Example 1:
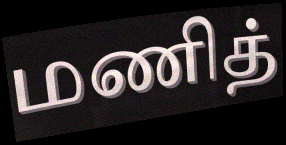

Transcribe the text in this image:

மணித்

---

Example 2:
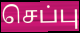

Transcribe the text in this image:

செப்பு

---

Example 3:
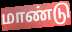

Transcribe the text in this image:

மாண்டு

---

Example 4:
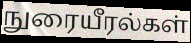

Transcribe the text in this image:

நுரையீரல்கள்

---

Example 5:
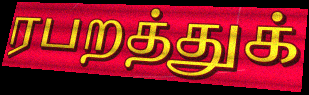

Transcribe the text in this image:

ரபறத்துக்